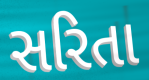
સરિતા